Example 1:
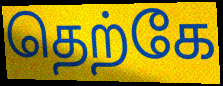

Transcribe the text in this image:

தெற்கே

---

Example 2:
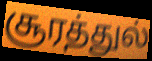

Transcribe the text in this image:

சூரத்துல்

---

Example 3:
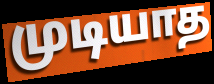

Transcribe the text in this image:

முடியாத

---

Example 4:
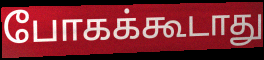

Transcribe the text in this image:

போகக்கூடாது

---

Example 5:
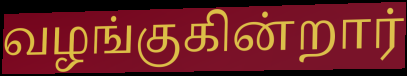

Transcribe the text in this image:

வழங்குகின்றார்